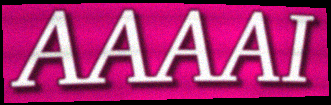
AAAAI